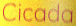
Cicada